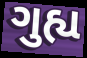
ગુહ્ય